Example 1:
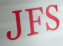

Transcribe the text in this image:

JFS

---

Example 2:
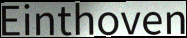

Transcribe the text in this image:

Einthoven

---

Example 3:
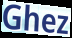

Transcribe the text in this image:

Ghez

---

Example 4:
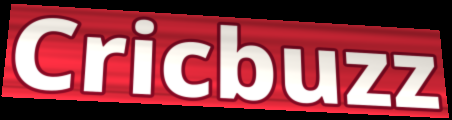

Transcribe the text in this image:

Cricbuzz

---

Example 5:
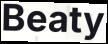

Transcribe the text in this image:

Beaty